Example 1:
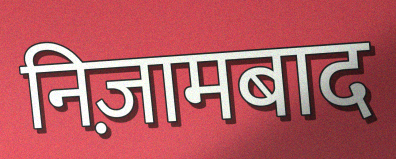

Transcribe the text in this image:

निज़ामबाद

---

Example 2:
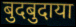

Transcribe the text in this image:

बुदबुदाया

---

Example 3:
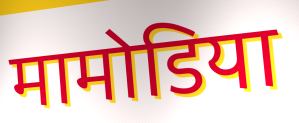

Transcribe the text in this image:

मामोडिया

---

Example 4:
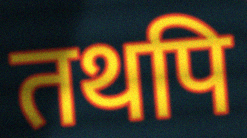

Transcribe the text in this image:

तथपि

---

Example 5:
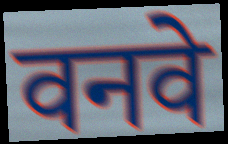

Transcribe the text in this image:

वनवे